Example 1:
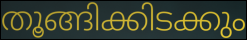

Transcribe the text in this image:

തൂങ്ങിക്കിടക്കും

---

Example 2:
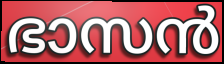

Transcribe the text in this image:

ഭാസൻ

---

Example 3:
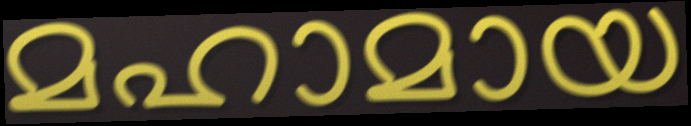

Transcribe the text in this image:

മഹാമായ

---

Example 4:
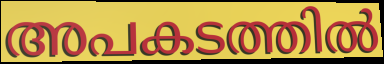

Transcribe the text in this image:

അപകടത്തിൽ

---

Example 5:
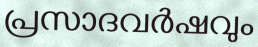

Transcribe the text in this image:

പ്രസാദവർഷവും